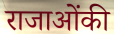
राजाओंकी